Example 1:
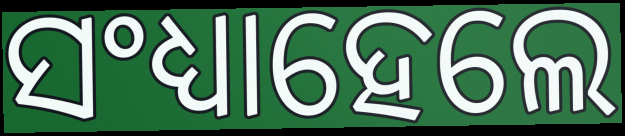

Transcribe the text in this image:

ସଂଧ୍ୟାହେଲେ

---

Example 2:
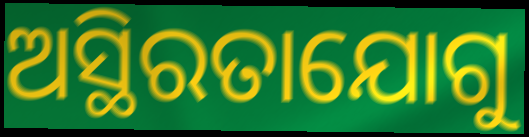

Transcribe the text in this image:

ଅସ୍ଥିରତାଯୋଗୁ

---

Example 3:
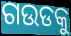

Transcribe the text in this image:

ଗଉଡକୁ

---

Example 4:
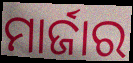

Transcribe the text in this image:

ମାର୍ଜାର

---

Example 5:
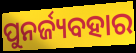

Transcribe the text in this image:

ପୁନର୍ଜ୍ୟବହାର